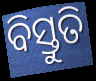
ବିସ୍ତୁତି